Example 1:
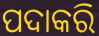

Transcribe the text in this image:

ପଦାକରି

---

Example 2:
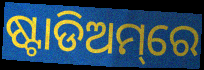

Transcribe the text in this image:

ଷ୍ଟାଡିଅମ୍‌ରେ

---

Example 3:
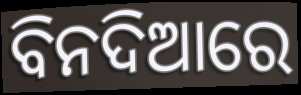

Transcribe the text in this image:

ବିନଦିଆରେ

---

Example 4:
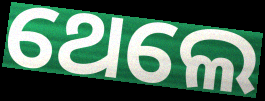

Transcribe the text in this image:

ଥେଲେ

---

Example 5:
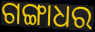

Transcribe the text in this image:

ଗଙ୍ଗାଧର